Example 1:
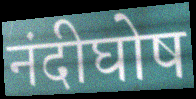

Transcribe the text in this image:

नंदीघोष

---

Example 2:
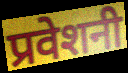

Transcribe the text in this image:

प्रवेशनी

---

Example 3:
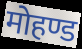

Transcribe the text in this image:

मोहण्ड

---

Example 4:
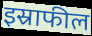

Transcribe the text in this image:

इस्राफील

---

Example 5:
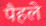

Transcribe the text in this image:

पैहले